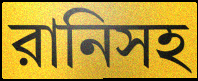
রানিসহ